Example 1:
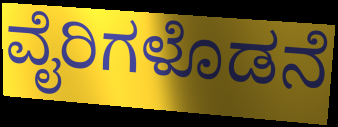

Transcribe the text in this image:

ವೈರಿಗಳೊಡನೆ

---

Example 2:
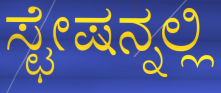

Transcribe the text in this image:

ಸ್ಟೇಷನ್ನಲ್ಲಿ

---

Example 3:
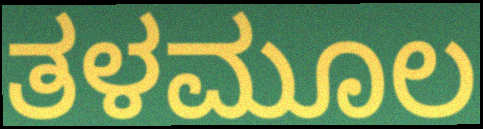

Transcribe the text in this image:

ತಳಮೂಲ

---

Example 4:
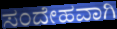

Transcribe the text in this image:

ಸಂದೇಹವಾಗಿ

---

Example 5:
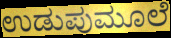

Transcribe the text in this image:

ಉಡುಪುಮೂಲೆ